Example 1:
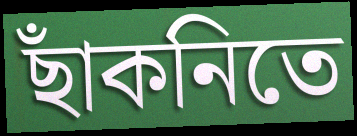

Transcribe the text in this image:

ছাঁকনিতে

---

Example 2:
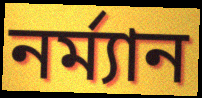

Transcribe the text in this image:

নর্ম্যান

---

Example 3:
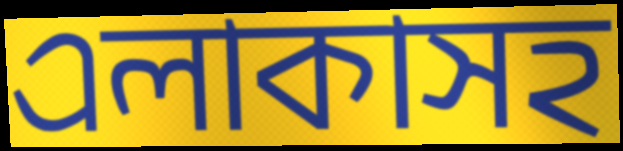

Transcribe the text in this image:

এলাকাসহ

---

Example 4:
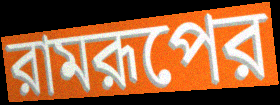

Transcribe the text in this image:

রামরূপের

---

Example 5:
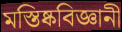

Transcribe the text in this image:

মস্তিষ্কবিজ্ঞানী